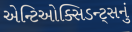
એન્ટિઓક્સિડન્ટ્સનું